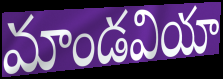
మాండవియా